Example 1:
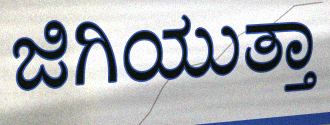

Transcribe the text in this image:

ಜಿಗಿಯುತ್ತಾ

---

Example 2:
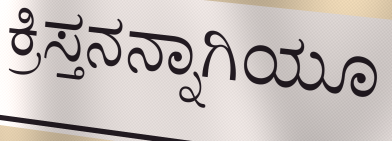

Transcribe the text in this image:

ಕ್ರಿಸ್ತನನ್ನಾಗಿಯೂ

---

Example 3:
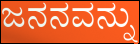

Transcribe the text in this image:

ಜನನವನ್ನು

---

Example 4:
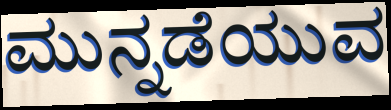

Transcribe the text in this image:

ಮುನ್ನಡೆಯುವ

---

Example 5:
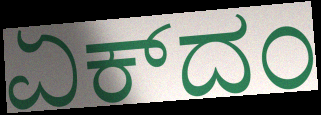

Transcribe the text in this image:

ಏಕ್‌ದಂ